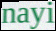
nayi